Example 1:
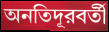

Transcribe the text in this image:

অনতিদূরবর্তী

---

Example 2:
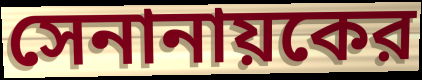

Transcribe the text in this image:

সেনানায়কের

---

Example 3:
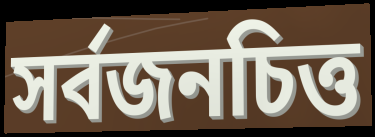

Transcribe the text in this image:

সর্বজনচিত্ত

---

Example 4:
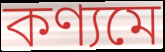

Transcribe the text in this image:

কণ্যমে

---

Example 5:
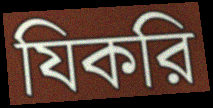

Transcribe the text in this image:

যিকরি